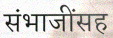
संभाजींसह